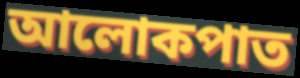
আলোকপাত